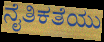
ನೈತಿಕತೆಯು